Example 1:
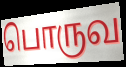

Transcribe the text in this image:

பொருவ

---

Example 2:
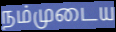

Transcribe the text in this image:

நம்முடைய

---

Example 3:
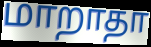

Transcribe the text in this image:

மாறாதா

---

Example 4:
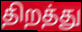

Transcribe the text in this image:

திறத்து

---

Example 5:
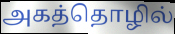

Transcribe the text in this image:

அகத்தொழில்